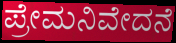
ಪ್ರೇಮನಿವೇದನೆ